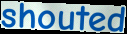
shouted